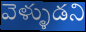
వెళ్ళుడని